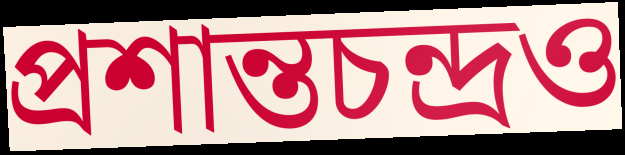
প্রশান্তচন্দ্রও